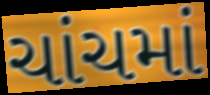
ચાંચમાં